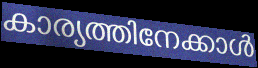
കാര്യത്തിനേക്കാൾ